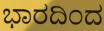
ಭಾರದಿಂದ